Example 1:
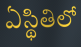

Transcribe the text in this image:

ఏస్థితిలో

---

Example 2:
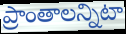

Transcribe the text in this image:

ప్రాంతాలన్నిటా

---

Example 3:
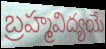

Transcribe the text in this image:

బ్రహ్మవిద్యయే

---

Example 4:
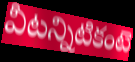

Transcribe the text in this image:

వీటన్నిటికంటె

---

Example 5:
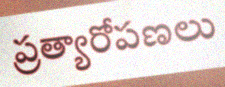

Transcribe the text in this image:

ప్రత్యారోపణలు